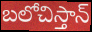
బలోచిస్తాన్